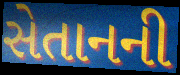
સેતાનની